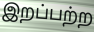
இறப்பற்ற